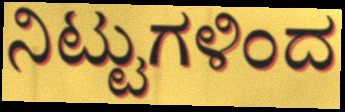
ನಿಟ್ಟುಗಳಿಂದ